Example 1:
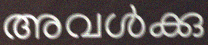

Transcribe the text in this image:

അവൾക്കു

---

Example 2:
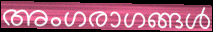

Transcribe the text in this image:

അംഗരാഗങ്ങൾ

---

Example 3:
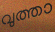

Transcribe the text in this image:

വുത്താ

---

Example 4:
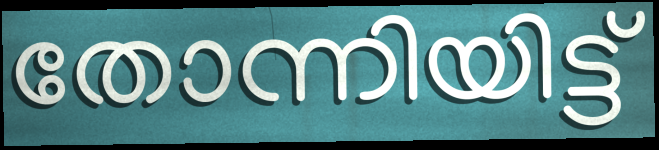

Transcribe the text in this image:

തോന്നിയിട്ട്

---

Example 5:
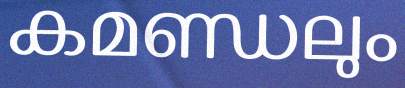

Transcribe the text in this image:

കമണ്ഡലും